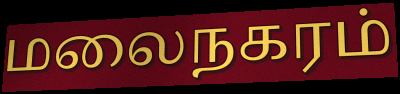
மலைநகரம்